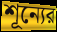
শূন্যের